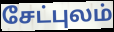
சேட்புலம்